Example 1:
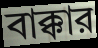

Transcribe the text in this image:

বাক্কার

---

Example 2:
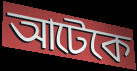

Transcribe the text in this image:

আটেকে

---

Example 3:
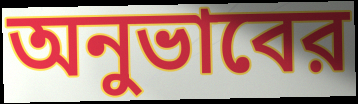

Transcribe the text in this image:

অনুভাবের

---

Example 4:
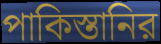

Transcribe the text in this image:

পাকিস্তানির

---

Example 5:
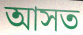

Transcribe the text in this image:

আসত